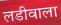
लडीवाला